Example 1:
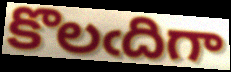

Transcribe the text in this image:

కొలఁదిగా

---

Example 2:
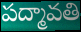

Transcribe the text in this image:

పద్మావతి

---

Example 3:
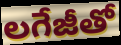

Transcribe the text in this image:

లగేజీతో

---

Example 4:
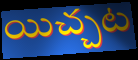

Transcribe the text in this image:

యిచ్చట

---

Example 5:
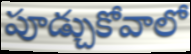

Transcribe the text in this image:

పూడ్చుకోవాలో